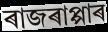
ৰাজৰাপ্পাৰ